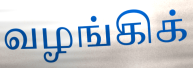
வழங்கிக்